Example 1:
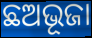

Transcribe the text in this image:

ଛଅଭୂଜା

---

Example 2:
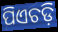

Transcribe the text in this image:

ପିଏଚଡ଼ି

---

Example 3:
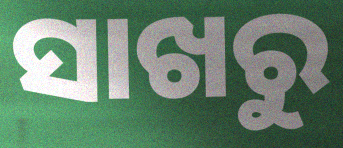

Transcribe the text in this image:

ସାଖରୁ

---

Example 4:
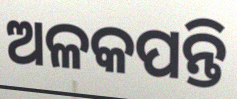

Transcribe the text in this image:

ଅଳକପନ୍ତି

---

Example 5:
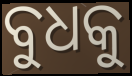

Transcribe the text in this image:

ବୁଧକୁ